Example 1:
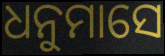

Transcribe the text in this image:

ଧନୁମାସେ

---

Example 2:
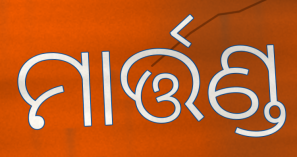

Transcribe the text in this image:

ମାର୍ତ୍ତଣ୍ଡ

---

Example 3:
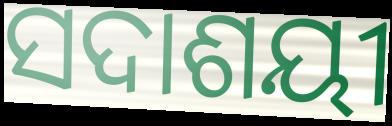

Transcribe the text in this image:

ସଦାଶୟୀ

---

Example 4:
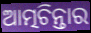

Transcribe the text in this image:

ଆତ୍ମଚିନ୍ତାର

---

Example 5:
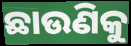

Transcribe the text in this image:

ଛାଉଣିକୁ